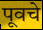
पूवचे